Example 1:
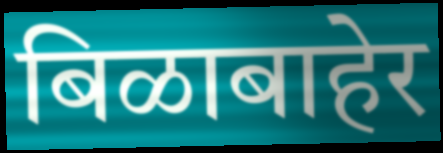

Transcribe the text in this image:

बिळाबाहेर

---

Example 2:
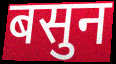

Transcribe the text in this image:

बसुन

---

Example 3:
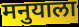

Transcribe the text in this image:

मनुयाला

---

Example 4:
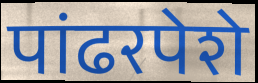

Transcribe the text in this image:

पांढरपेशे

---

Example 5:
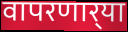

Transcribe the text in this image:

वापरणार्‍या